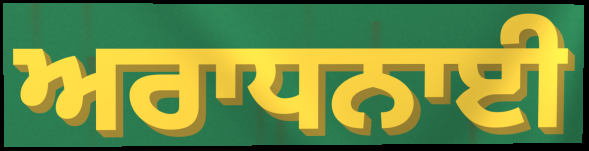
ਅਰਾਧਨਾਈ